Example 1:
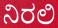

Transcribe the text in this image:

ನಿರಲಿ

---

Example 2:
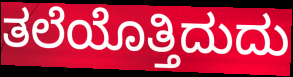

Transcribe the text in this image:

ತಲೆಯೊತ್ತಿದುದು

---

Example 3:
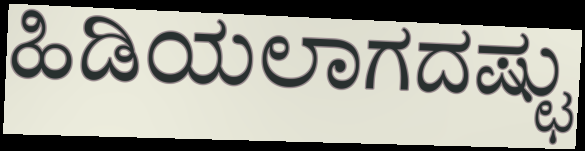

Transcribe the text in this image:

ಹಿಡಿಯಲಾಗದಷ್ಟು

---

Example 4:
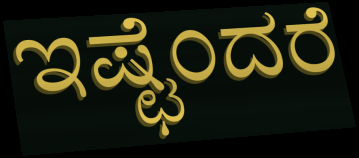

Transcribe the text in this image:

ಇಷ್ಟೆಂದರೆ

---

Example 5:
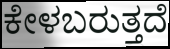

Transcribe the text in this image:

ಕೇಳಬರುತ್ತದೆ